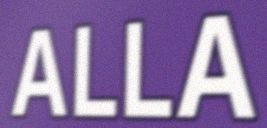
ALLA